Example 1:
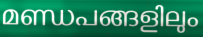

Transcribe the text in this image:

മണ്ഡപങ്ങളിലും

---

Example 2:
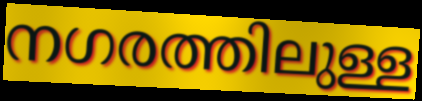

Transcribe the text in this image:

നഗരത്തിലുള്ള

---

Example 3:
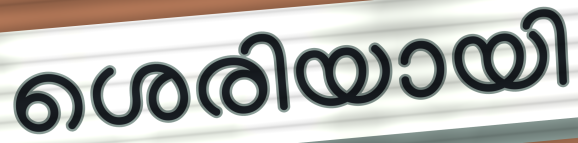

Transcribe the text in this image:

ശെരിയായി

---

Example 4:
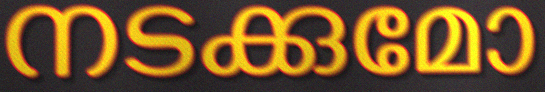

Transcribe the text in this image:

നടക്കുമോ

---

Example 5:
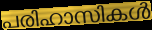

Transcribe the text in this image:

പരിഹാസികൾ